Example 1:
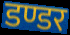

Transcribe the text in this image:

डण्डर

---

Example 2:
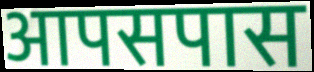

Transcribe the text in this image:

आपसपास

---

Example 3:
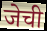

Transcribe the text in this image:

जेची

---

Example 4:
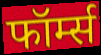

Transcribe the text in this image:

फॉर्म्स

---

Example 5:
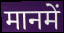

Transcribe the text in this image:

मानमें